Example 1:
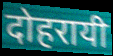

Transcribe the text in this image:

दोहरायी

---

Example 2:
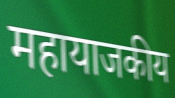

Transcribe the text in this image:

महायाजकीय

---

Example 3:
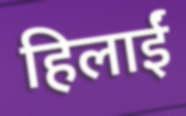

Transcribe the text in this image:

हिलाईं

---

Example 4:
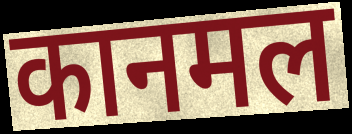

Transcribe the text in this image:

कानमल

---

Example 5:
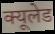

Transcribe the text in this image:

क्यूलेड